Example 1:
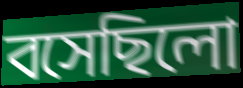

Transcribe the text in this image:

বসেছিলো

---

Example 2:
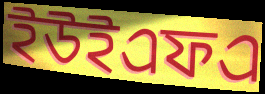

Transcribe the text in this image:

ইউইএফএ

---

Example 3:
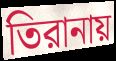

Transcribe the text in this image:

তিরানায়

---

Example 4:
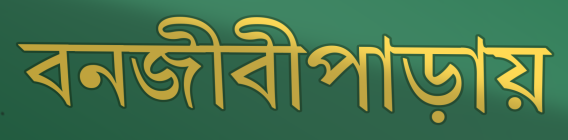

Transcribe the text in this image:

বনজীবীপাড়ায়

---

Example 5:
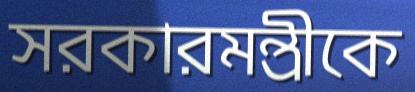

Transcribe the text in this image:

সরকারমন্ত্রীকে